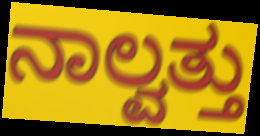
ನಾಲ್ವತ್ತು